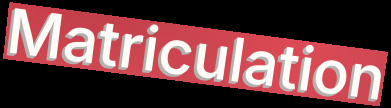
Matriculation